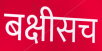
बक्षीसच